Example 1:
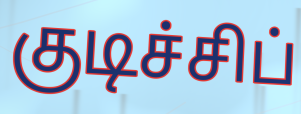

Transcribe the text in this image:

குடிச்சிப்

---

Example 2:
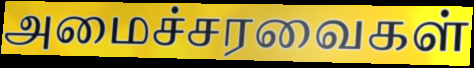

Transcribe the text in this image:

அமைச்சரவைகள்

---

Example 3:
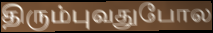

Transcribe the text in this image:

திரும்புவதுபோல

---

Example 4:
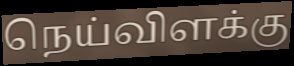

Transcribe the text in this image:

நெய்விளக்கு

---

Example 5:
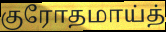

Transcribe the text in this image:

குரோதமாய்த்